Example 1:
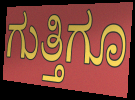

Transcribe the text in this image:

ಗುತ್ತಿಗೂ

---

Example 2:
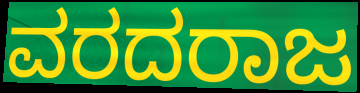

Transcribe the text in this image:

ವರದರಾಜ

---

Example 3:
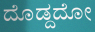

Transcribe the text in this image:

ದೊಡ್ದದೋ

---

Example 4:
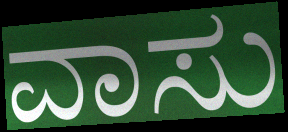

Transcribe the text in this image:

ವಾಸು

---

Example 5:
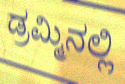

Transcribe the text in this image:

ಡ್ರಮ್ಮಿನಲ್ಲಿ